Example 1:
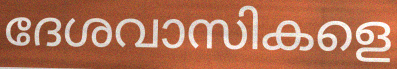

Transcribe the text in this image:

ദേശവാസികളെ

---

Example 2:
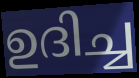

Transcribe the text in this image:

ഉദിച്ച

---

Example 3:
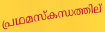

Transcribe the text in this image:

പ്രഥമസ്കന്ധത്തില്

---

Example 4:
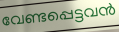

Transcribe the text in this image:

വേണ്ടപ്പെട്ടവൻ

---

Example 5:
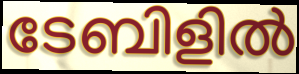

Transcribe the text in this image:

ടേബിളിൽ